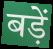
बड़ें